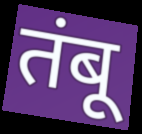
तंबू